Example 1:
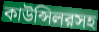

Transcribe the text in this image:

কাউন্সিলরসহ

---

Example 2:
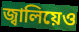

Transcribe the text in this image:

জ্বালিয়েও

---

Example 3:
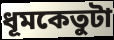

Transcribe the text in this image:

ধূমকেতুটা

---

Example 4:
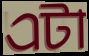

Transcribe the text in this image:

এটা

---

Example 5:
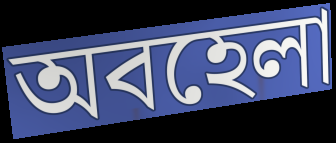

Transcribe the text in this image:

অবহেলা